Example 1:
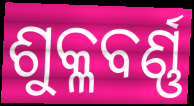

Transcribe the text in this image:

ଶୁକ୍ଳବର୍ଣ୍ଣ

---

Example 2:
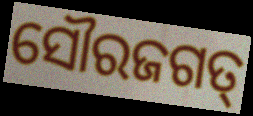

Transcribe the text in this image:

ସୌରଜଗତ୍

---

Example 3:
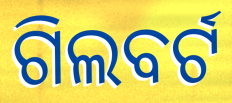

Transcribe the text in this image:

ଗିଲବର୍ଟ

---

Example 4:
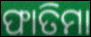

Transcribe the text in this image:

ଫାତିମା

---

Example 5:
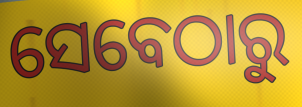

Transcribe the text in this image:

ସେବେଠାରୁ